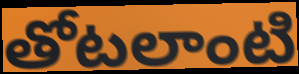
తోటలాంటి